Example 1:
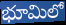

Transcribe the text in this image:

భూమిలో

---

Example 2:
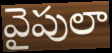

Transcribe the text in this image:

వైపులా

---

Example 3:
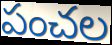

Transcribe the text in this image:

పంచల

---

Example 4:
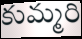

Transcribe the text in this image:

కుమ్మరి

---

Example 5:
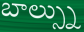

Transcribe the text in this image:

బాల్స్ను